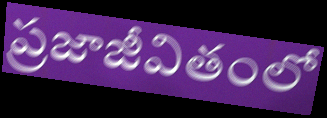
ప్రజాజీవితంలో